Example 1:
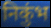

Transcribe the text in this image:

निकुंभ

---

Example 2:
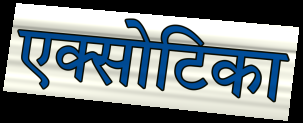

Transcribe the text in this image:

एक्सोटिका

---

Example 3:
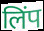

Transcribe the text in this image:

लिंप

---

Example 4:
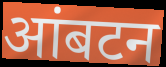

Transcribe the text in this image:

आंबटन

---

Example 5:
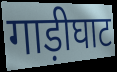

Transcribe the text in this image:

गाड़ीघाट